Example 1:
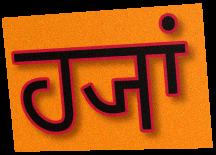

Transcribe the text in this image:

ਹ੍ਯਾਂ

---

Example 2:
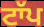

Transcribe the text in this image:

ਟਾੱਪ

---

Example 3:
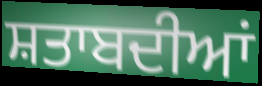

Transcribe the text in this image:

ਸ਼ਤਾਬਦੀਆਂ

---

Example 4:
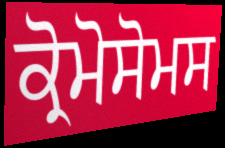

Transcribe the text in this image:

ਕ੍ਰੋਮੋਸੋਮਸ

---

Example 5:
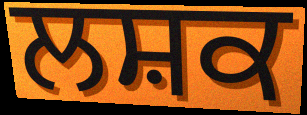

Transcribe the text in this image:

ਲਸ਼ਕ